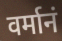
वर्मानं